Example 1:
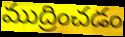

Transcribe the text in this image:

ముద్రించడం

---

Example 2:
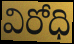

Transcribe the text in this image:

విరోధి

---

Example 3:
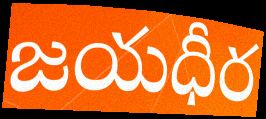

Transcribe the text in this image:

జయధీర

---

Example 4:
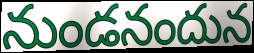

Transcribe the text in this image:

నుండనందున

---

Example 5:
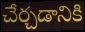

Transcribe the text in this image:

చేర్చడానికి